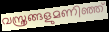
വസ്ത്രങ്ങളുമണിഞ്ഞ്